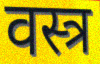
वस्त्र